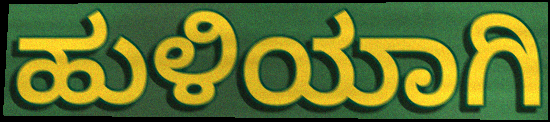
ಹುಳಿಯಾಗಿ